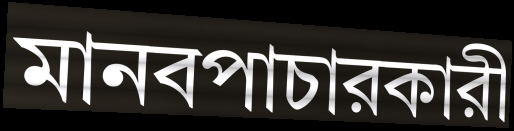
মানবপাচারকারী